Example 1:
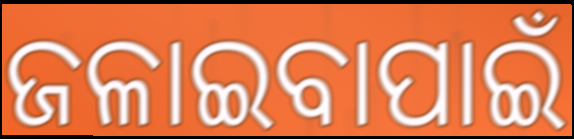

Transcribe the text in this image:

ଜଳାଇବାପାଇଁ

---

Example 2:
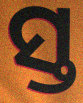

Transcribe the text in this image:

ସ୍ତ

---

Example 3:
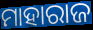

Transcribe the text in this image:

ମାହାରାଜ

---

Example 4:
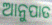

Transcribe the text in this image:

ଆନୁପାତ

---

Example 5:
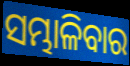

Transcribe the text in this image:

ସମ୍ଭାଳିବାର